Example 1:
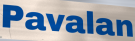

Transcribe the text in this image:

Pavalan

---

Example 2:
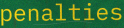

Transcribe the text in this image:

penalties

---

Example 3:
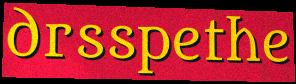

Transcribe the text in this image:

drsspethe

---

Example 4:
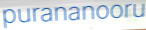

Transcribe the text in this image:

purananooru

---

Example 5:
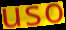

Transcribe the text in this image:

uso